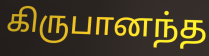
கிருபானந்த